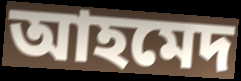
আহমেদ